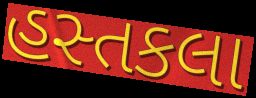
હસ્તકલા